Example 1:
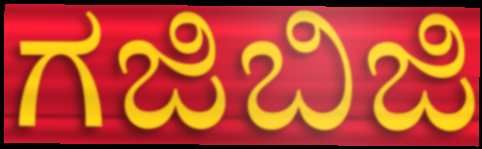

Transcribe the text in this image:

ಗಜಿಬಿಜಿ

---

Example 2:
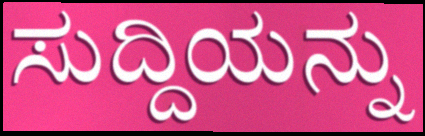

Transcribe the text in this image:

ಸುದ್ದಿಯನ್ನು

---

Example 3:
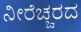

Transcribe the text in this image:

ನೀರೆಚ್ಚರದ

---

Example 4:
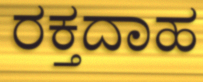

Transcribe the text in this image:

ರಕ್ತದಾಹ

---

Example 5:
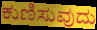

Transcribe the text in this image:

ಕುಣಿಸುವುದು